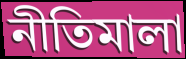
নীতিমালা